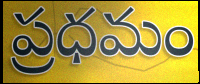
ప్రధమం